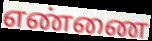
எண்ணை